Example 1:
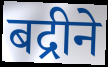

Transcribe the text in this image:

बद्रीने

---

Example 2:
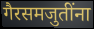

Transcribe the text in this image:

गैरसमजुतींना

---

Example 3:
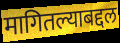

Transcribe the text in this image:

मागितल्याबद्दल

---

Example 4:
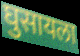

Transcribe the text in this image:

घुसायला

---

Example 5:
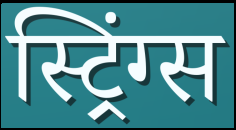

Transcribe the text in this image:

स्ट्रिंग्स